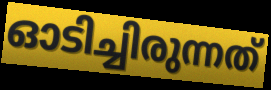
ഓടിച്ചിരുന്നത്